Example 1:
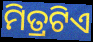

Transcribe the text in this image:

ମିତ୍ରଟିଏ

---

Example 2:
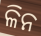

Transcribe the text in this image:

ଳିନ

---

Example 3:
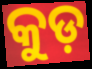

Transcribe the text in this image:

କୁଡ଼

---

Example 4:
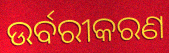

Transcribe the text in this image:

ଉର୍ବରୀକରଣ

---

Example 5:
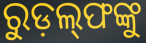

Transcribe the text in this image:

ରୁଡ଼ଲ୍‍ଫଙ୍କୁ